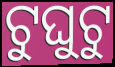
ଟୁଘୁଟୁ